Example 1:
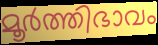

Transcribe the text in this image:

മൂർത്തിഭാവം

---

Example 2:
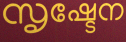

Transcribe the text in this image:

സൃഷ്ടേന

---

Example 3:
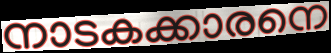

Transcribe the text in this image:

നാടകക്കാരനെ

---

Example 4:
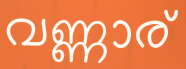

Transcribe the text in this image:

വണ്ണാര്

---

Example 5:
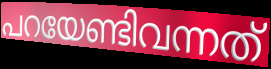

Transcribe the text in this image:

പറയേണ്ടിവന്നത്